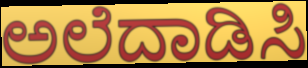
ಅಲೆದಾಡಿಸಿ